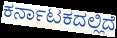
ಕರ್ನಾಟಕದಲ್ಲಿದೆ